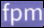
fpm